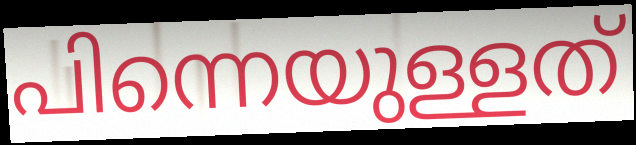
പിന്നെയുള്ളത്